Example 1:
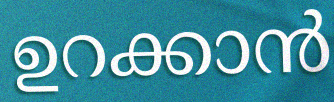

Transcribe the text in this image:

ഉറക്കാൻ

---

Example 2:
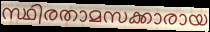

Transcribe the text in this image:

സ്ഥിരതാമസക്കാരായ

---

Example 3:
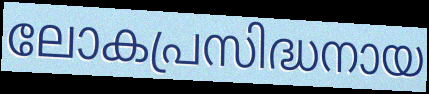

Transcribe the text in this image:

ലോകപ്രസിദ്ധനായ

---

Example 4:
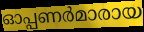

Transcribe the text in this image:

ഓപ്പണർമാരായ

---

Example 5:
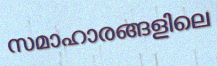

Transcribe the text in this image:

സമാഹാരങ്ങളിലെ